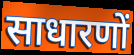
साधारणों